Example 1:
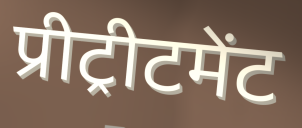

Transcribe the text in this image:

प्रीट्रीटमेंट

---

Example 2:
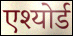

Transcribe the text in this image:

एश्योर्ड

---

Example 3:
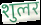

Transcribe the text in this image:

शुलर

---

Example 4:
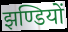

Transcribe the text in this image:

झण्डियों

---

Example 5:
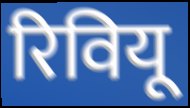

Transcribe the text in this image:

रिवियू